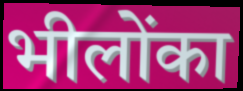
भीलोंका